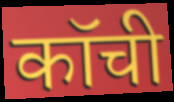
कॉची